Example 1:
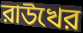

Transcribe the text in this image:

রাউখের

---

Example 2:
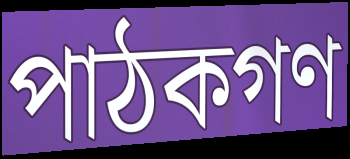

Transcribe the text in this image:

পাঠকগণ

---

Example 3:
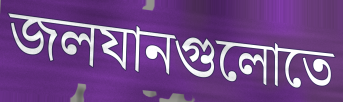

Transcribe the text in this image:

জলযানগুলোতে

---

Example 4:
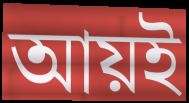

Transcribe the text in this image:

আয়ই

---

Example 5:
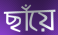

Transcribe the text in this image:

ছাঁয়ে